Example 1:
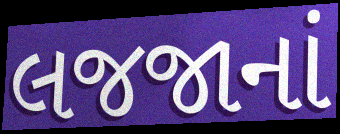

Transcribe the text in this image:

લજજાનાં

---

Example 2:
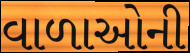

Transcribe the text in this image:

વાળાઓની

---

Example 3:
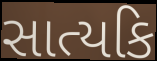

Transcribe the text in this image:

સાત્યકિ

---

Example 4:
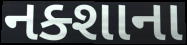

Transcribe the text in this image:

નક્શાના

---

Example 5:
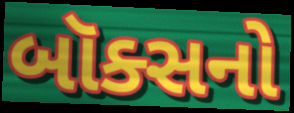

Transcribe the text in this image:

બૉક્સનો